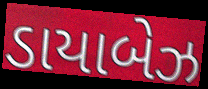
ડાયાબેઝ